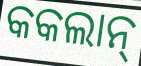
କକଲାନ୍